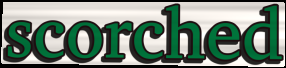
scorched